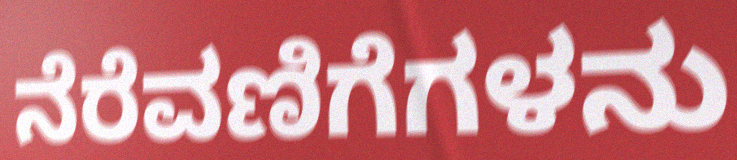
ನೆರೆವಣಿಗೆಗಳನು